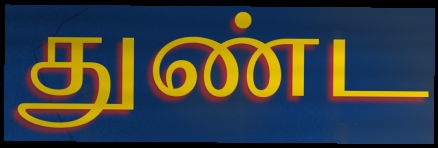
துண்ட